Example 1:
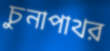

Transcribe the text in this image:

চুনাপাথর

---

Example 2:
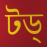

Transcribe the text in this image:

টড্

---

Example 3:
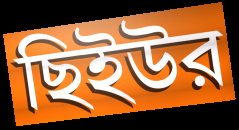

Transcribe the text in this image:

ছিইউর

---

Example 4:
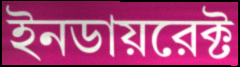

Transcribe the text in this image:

ইনডায়রেক্ট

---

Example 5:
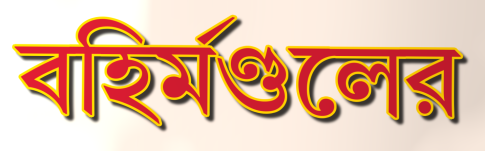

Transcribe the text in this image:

বহির্মণ্ডলের